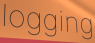
logging